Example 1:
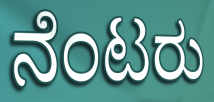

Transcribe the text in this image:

ನೆಂಟರು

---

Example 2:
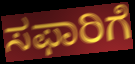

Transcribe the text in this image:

ಸಫಾರಿಗೆ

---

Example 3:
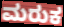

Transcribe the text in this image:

ಮರುಕ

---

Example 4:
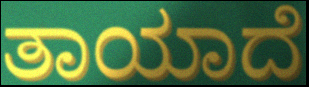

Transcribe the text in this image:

ತಾಯಾದೆ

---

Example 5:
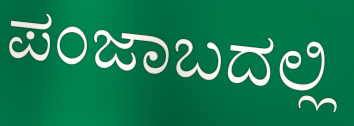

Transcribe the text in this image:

ಪಂಜಾಬದಲ್ಲಿ